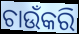
ଚାଉଁକରି